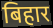
बिहार